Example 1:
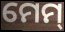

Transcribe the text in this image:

ମେମ୍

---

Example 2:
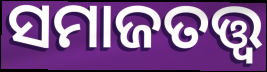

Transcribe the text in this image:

ସମାଜତତ୍ତ୍ବ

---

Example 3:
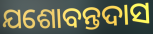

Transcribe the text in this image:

ଯଶୋବନ୍ତଦାସ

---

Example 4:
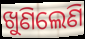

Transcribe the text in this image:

ଖୁଣିଲେଣି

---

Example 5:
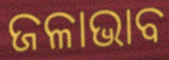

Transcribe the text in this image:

ଜଳାଭାବ